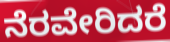
ನೆರವೇರಿದರೆ